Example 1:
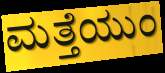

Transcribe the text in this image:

ಮತ್ತೆಯುಂ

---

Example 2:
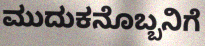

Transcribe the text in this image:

ಮುದುಕನೊಬ್ಬನಿಗೆ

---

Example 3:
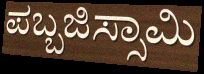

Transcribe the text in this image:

ಪಬ್ಬಜಿಸ್ಸಾಮಿ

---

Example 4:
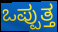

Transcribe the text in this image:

ಒಪ್ಪುತ್ತ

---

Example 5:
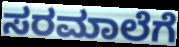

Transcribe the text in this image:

ಸರಮಾಲೆಗೆ